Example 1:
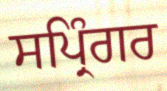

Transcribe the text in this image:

ਸਪ੍ਰਿੰਗਰ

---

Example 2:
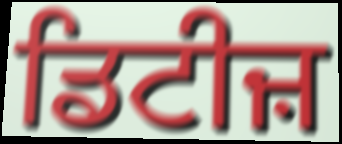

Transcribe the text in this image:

ਡਿਟੀਜ਼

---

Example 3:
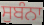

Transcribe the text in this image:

ਸੁਬੰਨਾ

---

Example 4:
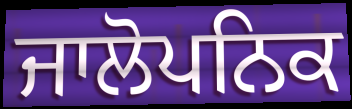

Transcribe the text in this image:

ਜਾਲੋਪਨਿਕ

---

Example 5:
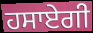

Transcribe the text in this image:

ਹਸਾਏਗੀ